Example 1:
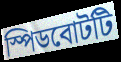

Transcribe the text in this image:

স্পিডবোটটি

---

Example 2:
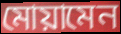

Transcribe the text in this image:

মোয়ামেন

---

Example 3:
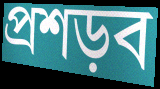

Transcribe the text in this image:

প্রশড়ব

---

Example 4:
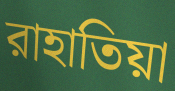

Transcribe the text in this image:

রাহাতিয়া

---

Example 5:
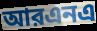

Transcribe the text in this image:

আরএনএ